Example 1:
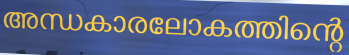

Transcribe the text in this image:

അന്ധകാരലോകത്തിന്റെ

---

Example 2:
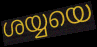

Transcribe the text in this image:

ശയ്യയെ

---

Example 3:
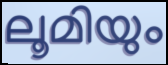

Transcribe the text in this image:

ലൂമിയും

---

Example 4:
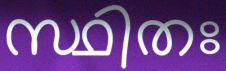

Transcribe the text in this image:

സ്ഥിതഃ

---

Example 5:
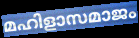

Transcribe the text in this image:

മഹിളാസമാജം